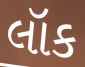
લૉક